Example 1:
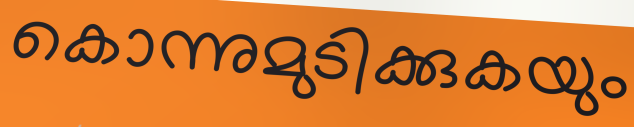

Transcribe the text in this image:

കൊന്നുമുടിക്കുകയും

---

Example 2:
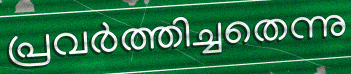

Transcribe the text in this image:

പ്രവർത്തിച്ചതെന്നു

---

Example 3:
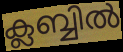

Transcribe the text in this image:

ക്ലബ്ബിൽ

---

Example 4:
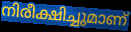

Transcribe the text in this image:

നിരീക്ഷിച്ചുമാണ്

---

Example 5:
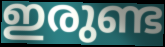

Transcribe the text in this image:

ഇരുണ്ട